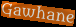
Gawhane